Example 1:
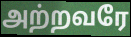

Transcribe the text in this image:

அற்றவரே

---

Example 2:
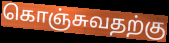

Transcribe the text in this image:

கொஞ்சுவதற்கு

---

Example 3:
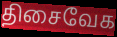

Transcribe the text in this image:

திசைவேக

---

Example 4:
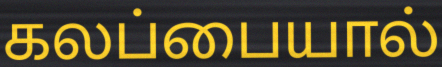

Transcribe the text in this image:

கலப்பையால்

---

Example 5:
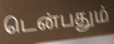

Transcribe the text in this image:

டென்பதும்